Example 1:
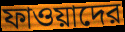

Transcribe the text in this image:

ফাওয়াদের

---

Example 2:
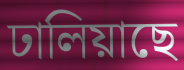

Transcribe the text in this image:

ঢালিয়াছে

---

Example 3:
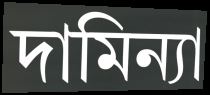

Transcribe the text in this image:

দামিন্যা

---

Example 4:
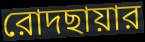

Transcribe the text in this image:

রোদছায়ার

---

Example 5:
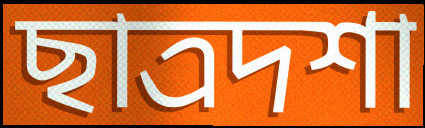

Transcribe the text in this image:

ছাত্রদশা